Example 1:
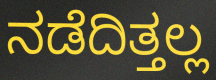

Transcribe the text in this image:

ನಡೆದಿತ್ತಲ್ಲ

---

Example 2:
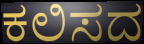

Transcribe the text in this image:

ಕಲಿಸದ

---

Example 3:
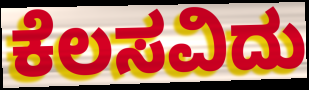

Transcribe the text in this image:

ಕೆಲಸವಿದು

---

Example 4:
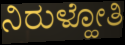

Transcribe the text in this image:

ನಿರುಳ್ಹೋತಿ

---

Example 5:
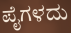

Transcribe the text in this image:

ಪೈಗಳದು